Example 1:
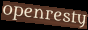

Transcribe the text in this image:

openresty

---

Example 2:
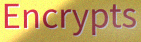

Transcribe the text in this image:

Encrypts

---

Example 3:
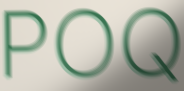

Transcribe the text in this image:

POQ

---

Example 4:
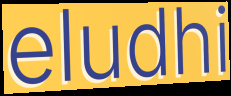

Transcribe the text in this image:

eludhi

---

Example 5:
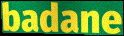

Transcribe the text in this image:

badane